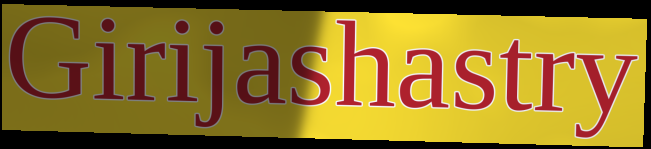
Girijashastry